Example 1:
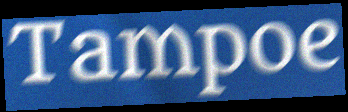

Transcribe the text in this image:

Tampoe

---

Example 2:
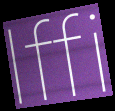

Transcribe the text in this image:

Iffi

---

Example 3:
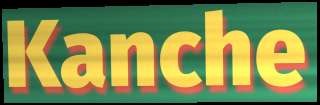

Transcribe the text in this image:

Kanche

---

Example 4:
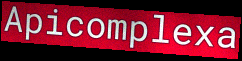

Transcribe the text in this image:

Apicomplexa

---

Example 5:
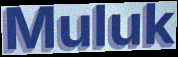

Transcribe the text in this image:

Muluk